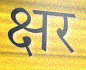
क्षर